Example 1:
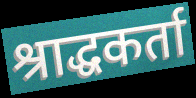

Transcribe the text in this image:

श्राद्धकर्ता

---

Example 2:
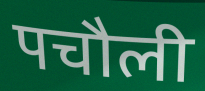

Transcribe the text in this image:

पचौली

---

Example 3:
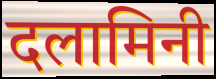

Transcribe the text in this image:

दलामिनी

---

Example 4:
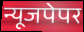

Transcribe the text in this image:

न्‍यूजपेपर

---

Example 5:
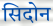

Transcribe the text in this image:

सिदोन